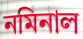
নমিনাল